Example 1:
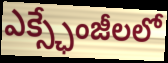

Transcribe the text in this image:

ఎక్స్ఛేంజీలలో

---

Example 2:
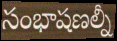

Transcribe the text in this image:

సంభాషణల్నీ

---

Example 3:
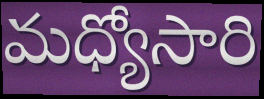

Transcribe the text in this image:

మధ్యోసారి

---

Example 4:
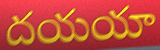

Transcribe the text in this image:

దయయా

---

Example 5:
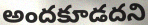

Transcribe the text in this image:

అందకూడదని